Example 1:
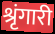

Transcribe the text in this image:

श्रृंगारी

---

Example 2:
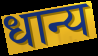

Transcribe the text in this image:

धान्य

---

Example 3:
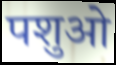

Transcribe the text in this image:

पशुओ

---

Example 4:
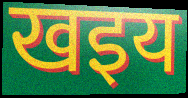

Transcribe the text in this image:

खइय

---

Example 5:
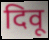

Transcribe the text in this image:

दिवू